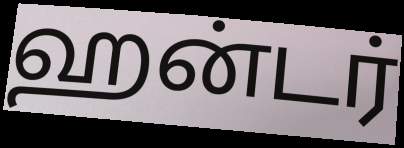
ஹன்டர்